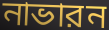
নাভারন